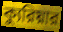
ক্যুরিয়ার